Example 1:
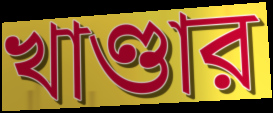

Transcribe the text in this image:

খাণ্ডার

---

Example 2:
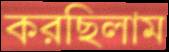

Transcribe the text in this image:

করছিলাম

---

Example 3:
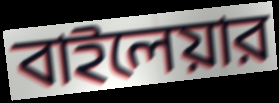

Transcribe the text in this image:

বাইলেয়ার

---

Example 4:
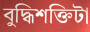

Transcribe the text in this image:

বুদ্ধিশক্তিটা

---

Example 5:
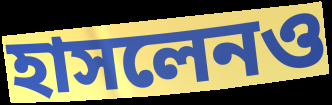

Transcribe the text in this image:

হাসলেনও